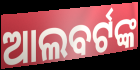
ଆଲବର୍ଟଙ୍କ